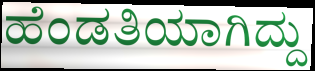
ಹೆಂಡತಿಯಾಗಿದ್ದು